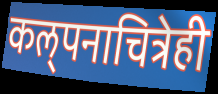
कल्पनाचित्रेही